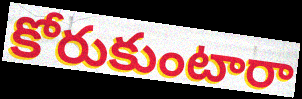
కోరుకుంటారా